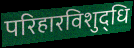
परिहारविशुद्धि